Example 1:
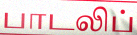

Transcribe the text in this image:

பாடலிப்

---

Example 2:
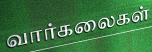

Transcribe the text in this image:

வார்கலைகள்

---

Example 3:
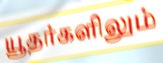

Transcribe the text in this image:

யூதர்களிலும்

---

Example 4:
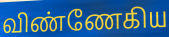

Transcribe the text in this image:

விண்ணேகிய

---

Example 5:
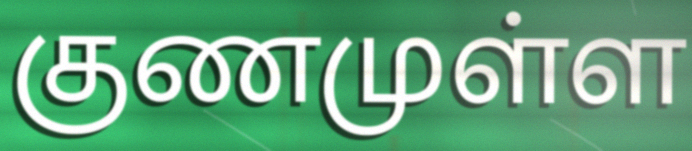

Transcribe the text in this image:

குணமுள்ள